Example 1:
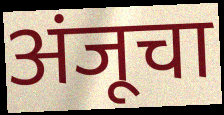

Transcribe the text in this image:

अंजूचा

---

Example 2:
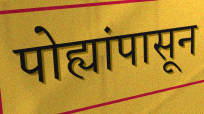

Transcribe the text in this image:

पोह्यांपासून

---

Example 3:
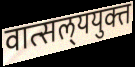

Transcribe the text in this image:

वात्सल्ययुक्त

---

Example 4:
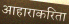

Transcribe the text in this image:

आहाराकरिता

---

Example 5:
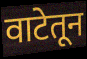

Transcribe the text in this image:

वाटेतून